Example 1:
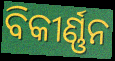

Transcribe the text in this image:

ବିକୀର୍ଣ୍ଣନ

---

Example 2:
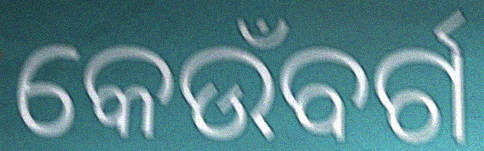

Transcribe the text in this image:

କେଉଁବର୍ଗ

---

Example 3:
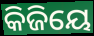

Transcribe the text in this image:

କିଜିୟେ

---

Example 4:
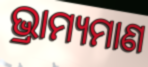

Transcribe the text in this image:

ଭ୍ରାମ୍ୟମାଣ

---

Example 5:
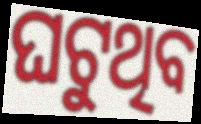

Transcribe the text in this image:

ଘଟୁଥିବ